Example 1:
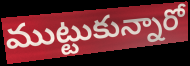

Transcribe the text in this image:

ముట్టుకున్నారో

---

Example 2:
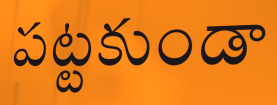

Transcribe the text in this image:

పట్టకుండా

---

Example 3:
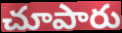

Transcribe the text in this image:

చూపారు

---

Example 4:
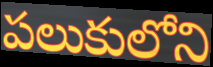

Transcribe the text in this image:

పలుకులోని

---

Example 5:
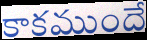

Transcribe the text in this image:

కాకముందే